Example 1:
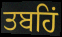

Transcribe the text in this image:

ਤਬਹਿਂ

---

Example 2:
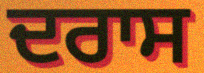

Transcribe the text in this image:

ਦਰਾਸ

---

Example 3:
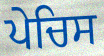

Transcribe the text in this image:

ਪੇਚਿਸ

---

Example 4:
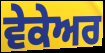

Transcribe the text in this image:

ਵੇਕੇਅਰ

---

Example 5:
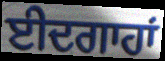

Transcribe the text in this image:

ਈਦਗਾਹਾਂ